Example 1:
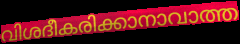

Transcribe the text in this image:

വിശദീകരിക്കാനാവാത്ത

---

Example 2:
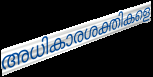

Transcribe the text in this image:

അധികാരശക്തികളെ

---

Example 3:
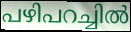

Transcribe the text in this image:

പഴിപറച്ചിൽ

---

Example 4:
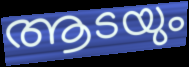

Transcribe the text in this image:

ആടയും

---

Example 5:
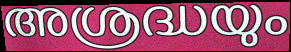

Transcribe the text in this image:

അശ്രദ്ധയും